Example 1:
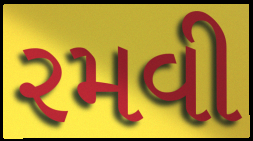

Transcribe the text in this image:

રમવી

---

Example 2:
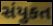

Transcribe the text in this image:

સંયુકત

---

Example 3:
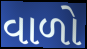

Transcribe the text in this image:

વાળો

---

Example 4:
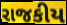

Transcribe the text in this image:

રાજકીય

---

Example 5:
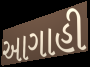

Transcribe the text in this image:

આગાહી